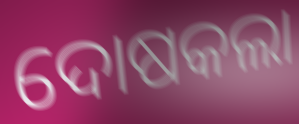
ଦୋଷକଲା